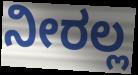
ನೀರಲ್ಲ